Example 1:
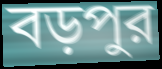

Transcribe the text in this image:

বড়পুর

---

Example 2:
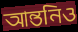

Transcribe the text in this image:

আন্তনিও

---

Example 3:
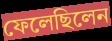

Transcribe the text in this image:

ফেলেছিলেন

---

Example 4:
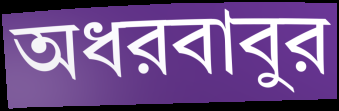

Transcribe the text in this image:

অধরবাবুর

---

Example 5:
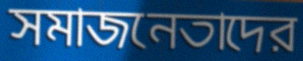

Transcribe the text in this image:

সমাজনেতাদের